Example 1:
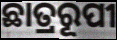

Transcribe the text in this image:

ଛାତ୍ରରୂପୀ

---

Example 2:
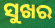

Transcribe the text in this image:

ସୁଖର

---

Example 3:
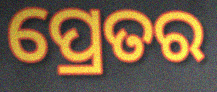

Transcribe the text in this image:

ପ୍ରେତର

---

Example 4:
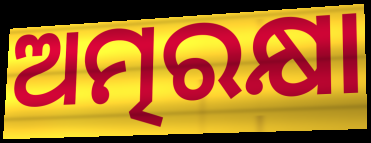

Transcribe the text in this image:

ଅତ୍ମରକ୍ଷା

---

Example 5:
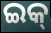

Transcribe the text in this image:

ଇକ୍